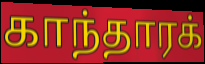
காந்தாரக்